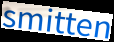
smitten